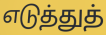
எடுத்துத்